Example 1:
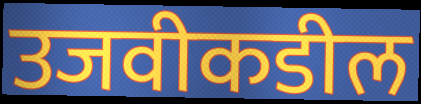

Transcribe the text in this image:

उजवीकडील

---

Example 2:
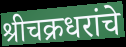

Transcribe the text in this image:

श्रीचक्रधरांचे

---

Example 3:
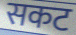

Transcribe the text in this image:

सकट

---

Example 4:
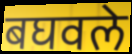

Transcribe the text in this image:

बघवले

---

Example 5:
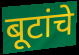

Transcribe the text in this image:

बूटांचे